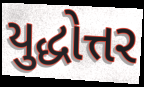
યુદ્ધોત્તર